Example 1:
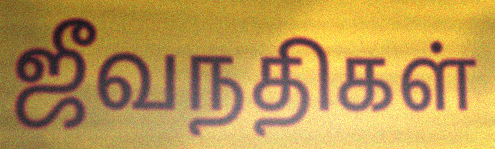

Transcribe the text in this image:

ஜீவநதிகள்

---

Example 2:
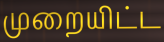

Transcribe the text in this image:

முறையிட்ட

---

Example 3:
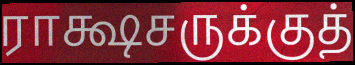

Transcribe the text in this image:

ராக்ஷசருக்குத்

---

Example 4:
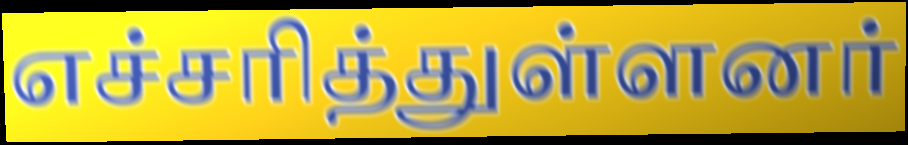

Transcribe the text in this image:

எச்சரித்துள்ளனர்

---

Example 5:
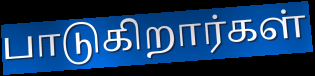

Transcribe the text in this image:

பாடுகிறார்கள்